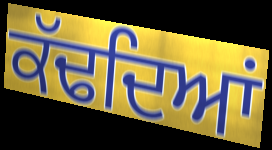
ਕੱਢਦਿਆਂ